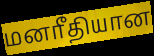
மனரீதியான